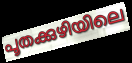
പൂതക്കുഴിയിലെ